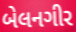
બેલનગીર